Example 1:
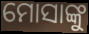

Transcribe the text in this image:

ମୋସାଙ୍କୁ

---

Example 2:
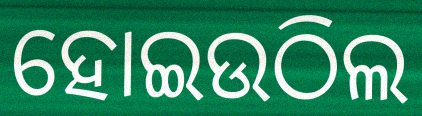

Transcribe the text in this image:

ହୋଇଉଠିଲ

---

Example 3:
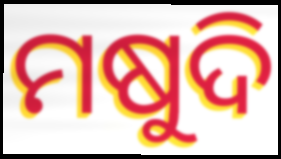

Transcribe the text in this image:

ମଷୁଦି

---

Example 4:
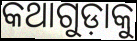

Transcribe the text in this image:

କଥାଗୁଡ଼ାକୁ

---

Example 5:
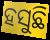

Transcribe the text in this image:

ହସୁଛି